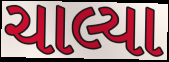
ચાલ્યા